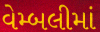
વેમ્બલીમાં